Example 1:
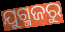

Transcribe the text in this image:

ଯୁଗ୍ମଜରୁ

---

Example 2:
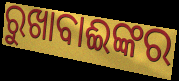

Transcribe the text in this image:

ରୁଖାବାଈଙ୍କର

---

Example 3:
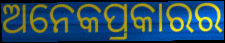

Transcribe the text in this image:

ଅନେକପ୍ରକାରର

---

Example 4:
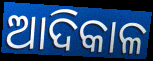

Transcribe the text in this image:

ଆଦିକାଳ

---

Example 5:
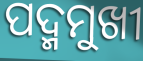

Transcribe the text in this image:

ପଦ୍ମମୁଖୀ